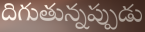
దిగుతున్నప్పుడు